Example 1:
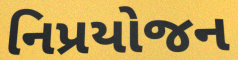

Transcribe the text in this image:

નિપ્રયોજન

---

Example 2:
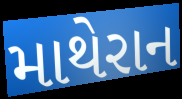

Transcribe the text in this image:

માથેરાન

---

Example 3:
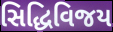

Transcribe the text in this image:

સિદ્ધિવિજય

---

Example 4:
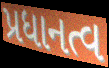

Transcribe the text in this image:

પ્રધાનત્વ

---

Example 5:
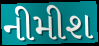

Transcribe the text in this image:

નીમીશ